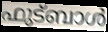
ഫുട്ബാൾ